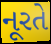
નૂરતે